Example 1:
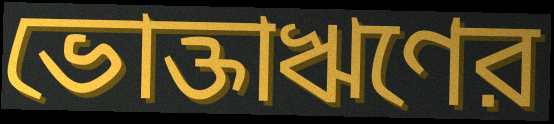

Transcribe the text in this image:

ভোক্তাঋণের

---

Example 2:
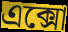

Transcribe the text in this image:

এক্সো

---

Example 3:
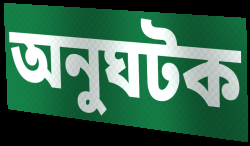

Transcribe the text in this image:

অনুঘটক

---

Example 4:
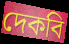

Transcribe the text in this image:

দেকবি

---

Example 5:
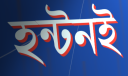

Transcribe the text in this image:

হন্টনই